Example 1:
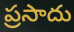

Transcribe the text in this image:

ప్రసాదు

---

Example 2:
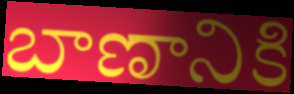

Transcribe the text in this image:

బాణానికి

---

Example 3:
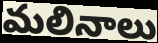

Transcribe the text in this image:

మలినాలు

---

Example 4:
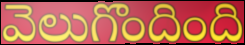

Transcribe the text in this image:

వెలుగొందింది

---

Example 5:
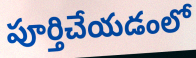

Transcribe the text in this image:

పూర్తిచేయడంలో